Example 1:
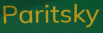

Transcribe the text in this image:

Paritsky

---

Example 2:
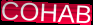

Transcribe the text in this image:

COHAB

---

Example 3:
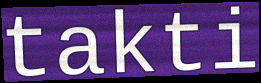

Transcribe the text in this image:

takti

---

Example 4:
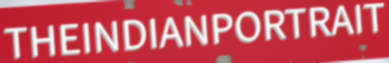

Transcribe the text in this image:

THEINDIANPORTRAIT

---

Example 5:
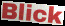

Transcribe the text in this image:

Blick